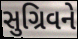
સુગ્રિવને